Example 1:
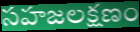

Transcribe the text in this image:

సహజలక్షణం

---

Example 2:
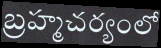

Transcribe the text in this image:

బ్రహ్మచర్యంలో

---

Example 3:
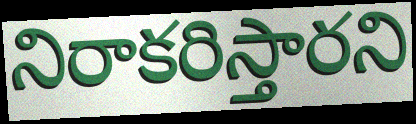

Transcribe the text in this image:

నిరాకరిస్తారని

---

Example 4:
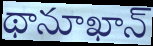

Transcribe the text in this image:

థానూఖాన్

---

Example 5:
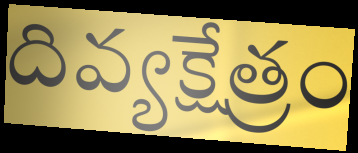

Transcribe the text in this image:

దివ్యక్షేత్రం